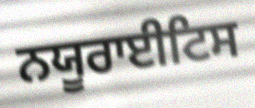
ਨਯੂਰਾਈਟਿਸ